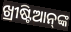
ଖ୍ରୀଷ୍ଟିଆନ୍‌ଙ୍କ